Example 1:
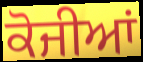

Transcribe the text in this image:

ਕੋਜੀਆਂ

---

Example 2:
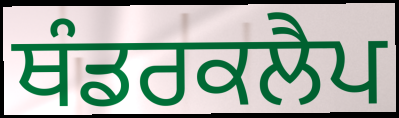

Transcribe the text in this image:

ਥੰਡਰਕਲੈਪ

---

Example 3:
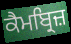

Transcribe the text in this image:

ਕੈਮਬ੍ਰਿਜ਼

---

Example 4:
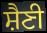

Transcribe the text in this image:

ਸ਼ੈਣੀ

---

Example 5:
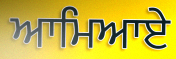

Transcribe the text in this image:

ਆਮਿਆਏ